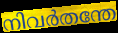
നിവർതന്തേ